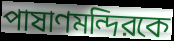
পাষাণমন্দিরকে